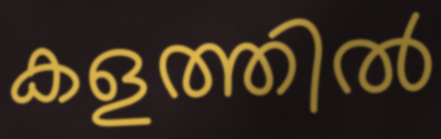
കളത്തിൽ